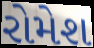
રોમેશ